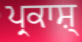
ਪ੍ਰਕਾਸ਼੍